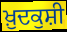
ਖ਼ੁਦਕੁਸ਼ੀ